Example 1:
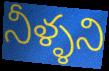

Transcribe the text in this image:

నీళ్ళని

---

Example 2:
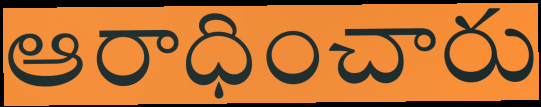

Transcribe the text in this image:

ఆరాధించారు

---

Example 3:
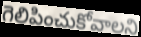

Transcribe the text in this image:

గెలిపించుకోవాలని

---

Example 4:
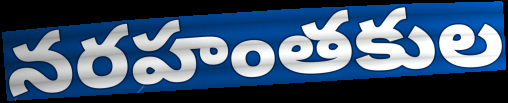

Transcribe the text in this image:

నరహంతకుల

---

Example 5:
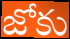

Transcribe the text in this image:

జోకు